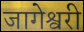
जागेश्वरी